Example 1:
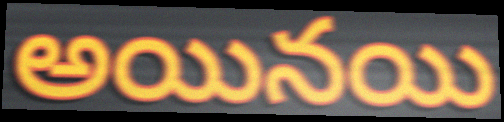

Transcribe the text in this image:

అయినయి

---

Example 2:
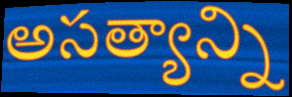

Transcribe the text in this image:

అసత్యాన్ని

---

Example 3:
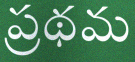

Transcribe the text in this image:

ప్రథమ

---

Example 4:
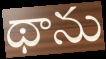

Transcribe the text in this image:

థాను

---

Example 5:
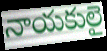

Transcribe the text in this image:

నాయకులై